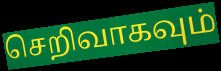
செறிவாகவும்